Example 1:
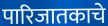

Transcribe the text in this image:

पारिजातकाचे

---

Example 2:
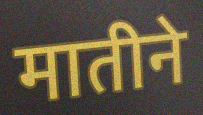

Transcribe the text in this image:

मातीने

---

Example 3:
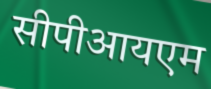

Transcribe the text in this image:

सीपीआयएम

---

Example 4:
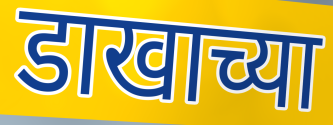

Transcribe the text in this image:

डाखाच्या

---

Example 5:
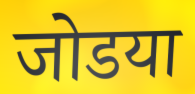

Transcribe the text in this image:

जोडया